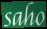
saho